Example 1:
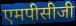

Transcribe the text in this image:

एमपीसीजी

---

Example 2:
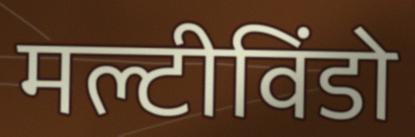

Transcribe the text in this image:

मल्टीविंडो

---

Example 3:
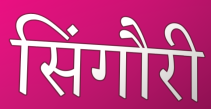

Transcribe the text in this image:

सिंगौरी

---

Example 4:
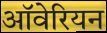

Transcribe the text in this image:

ऑवेरियन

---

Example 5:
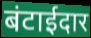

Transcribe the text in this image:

बंटाईदार